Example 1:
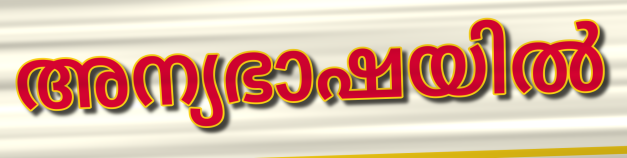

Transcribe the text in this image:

അന്യഭാഷയിൽ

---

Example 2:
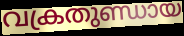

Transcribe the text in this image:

വക്രതുണ്ഡായ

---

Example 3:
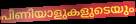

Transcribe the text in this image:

പിണിയാളുകളുടെയും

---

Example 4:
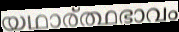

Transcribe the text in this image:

യഥാര്ത്ഥഭാവം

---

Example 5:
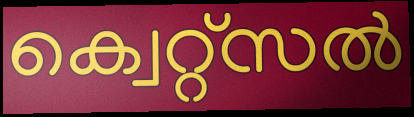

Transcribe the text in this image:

ക്വെറ്റ്സൽ